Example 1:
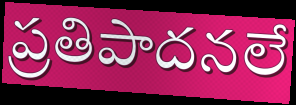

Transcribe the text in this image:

ప్రతిపాదనలే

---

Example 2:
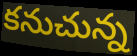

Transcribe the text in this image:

కనుచున్న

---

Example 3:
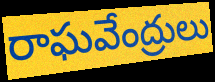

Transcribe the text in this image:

రాఘవేంద్రులు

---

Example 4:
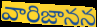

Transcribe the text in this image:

వారిజానన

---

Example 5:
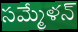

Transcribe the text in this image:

సమ్మేళన్